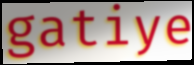
gatiye